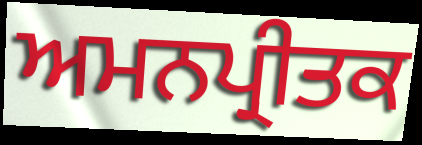
ਅਮਨਪ੍ਰੀਤਕ